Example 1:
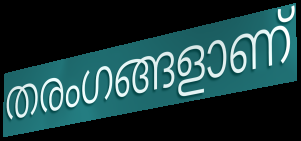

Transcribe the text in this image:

തരംഗങ്ങളാണ്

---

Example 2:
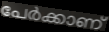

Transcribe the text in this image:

പേർക്കാണ്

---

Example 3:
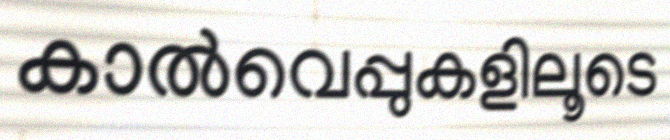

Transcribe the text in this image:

കാൽവെപ്പുകളിലൂടെ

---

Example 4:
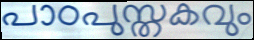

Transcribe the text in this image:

പാഠപുസ്തകവും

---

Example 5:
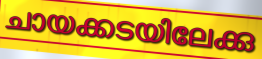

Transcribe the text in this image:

ചായക്കടയിലേക്കു